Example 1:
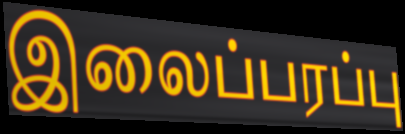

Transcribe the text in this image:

இலைப்பரப்பு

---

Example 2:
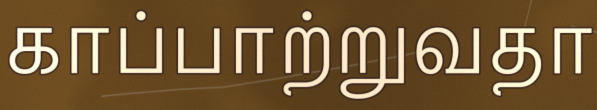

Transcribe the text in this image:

காப்பாற்றுவதா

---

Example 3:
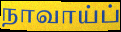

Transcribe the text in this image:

நாவாய்ப்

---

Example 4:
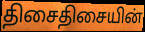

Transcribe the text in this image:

திசைதிசையின்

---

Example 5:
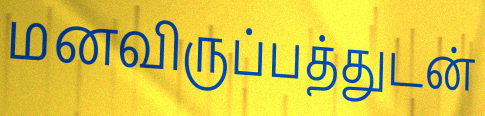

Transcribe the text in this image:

மனவிருப்பத்துடன்